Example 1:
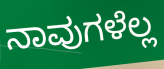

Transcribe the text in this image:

ನಾವುಗಳೆಲ್ಲ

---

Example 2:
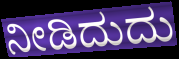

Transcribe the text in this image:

ನೀಡಿದುದು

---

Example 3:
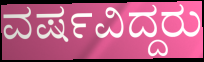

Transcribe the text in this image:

ವರ್ಷವಿದ್ದರು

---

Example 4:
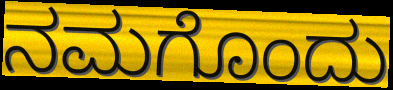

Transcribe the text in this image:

ನಮಗೊಂದು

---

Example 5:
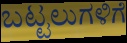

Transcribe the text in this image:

ಬಟ್ಟಲುಗಳಿಗೆ